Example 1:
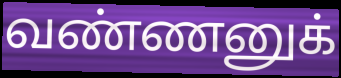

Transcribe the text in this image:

வண்ணனுக்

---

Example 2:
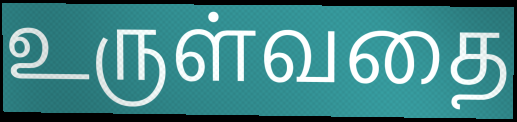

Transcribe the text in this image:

உருள்வதை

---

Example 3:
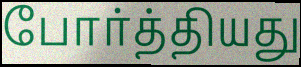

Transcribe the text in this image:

போர்த்தியது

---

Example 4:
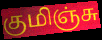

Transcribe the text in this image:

குமிஞ்சு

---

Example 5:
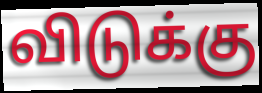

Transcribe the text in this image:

விடுக்கு